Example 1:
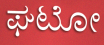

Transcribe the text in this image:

ಘಟೋ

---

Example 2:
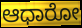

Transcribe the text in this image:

ಆಧಾರೋ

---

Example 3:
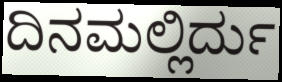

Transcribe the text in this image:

ದಿನಮಲ್ಲಿರ್ದು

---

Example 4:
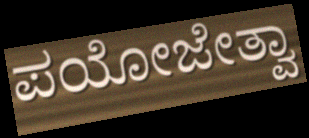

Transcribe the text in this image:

ಪಯೋಜೇತ್ವಾ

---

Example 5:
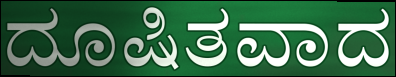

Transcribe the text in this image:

ದೂಷಿತವಾದ